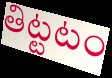
తిట్టటం